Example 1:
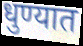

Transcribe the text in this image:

धुण्यात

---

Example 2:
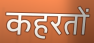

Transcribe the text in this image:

कहरतों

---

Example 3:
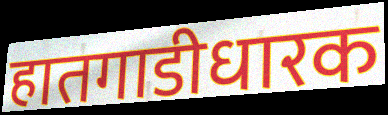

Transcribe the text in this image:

हातगाडीधारक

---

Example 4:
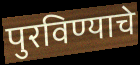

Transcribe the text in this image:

पुरविण्याचे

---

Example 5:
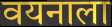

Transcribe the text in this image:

वयनाला